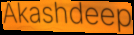
Akashdeep